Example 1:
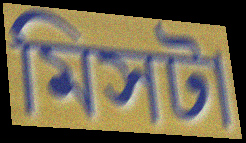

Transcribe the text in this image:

মিসটা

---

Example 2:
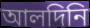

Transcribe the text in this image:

আলদিনি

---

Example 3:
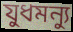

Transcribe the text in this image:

যুধমন্যু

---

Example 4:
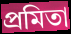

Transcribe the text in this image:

প্রমিতা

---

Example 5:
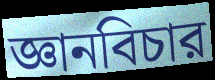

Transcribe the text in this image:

জ্ঞানবিচার